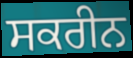
ਸਕਰੀਨ